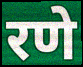
रणे